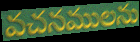
వచనములను